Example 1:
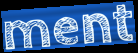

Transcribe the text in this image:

ment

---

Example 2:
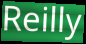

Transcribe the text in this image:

Reilly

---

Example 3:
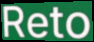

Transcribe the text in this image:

Reto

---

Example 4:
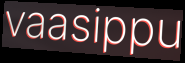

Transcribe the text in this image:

vaasippu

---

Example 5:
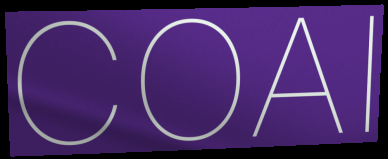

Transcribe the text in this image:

COAI